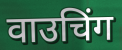
वाउचिंग